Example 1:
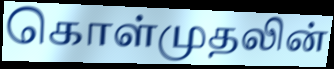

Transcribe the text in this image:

கொள்முதலின்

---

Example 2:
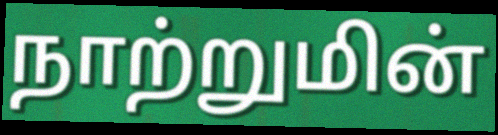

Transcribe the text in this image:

நாற்றுமின்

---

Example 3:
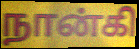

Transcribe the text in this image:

நான்கி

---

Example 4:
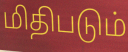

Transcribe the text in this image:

மிதிபடும்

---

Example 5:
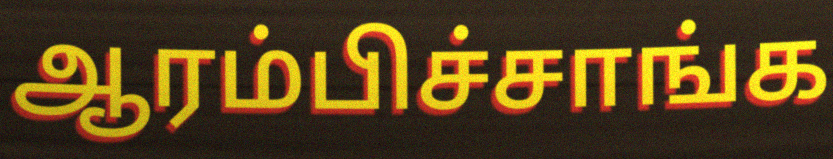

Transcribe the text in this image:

ஆரம்பிச்சாங்க